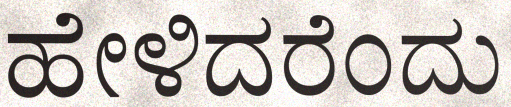
ಹೇಳಿದರೆಂದು